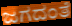
ಜಗದಂತೆ